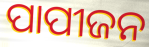
ପାପୀଜନ